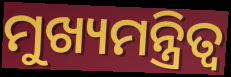
ମୁଖ୍ୟମନ୍ତ୍ରିତ୍ବ